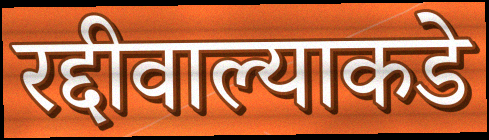
रद्दीवाल्याकडे